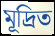
মূদ্রিত